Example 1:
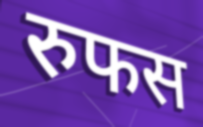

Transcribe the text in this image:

रुफस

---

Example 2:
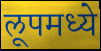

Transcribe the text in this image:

लूपमध्ये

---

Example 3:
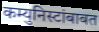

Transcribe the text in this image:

कम्युनिस्टांबाबत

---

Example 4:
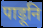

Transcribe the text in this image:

पाडूनि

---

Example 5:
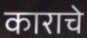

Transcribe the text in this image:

काराचे